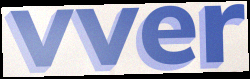
vver